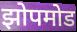
झोपमोड